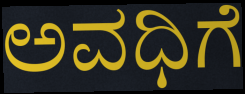
ಅವಧಿಗೆ